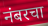
नंबरचा